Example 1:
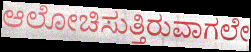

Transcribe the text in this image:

ಆಲೋಚಿಸುತ್ತಿರುವಾಗಲೇ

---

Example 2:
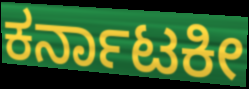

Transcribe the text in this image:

ಕರ್ನಾಟಕೀ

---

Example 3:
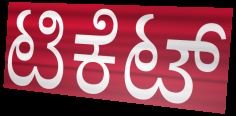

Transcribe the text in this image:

ಟಿಕೆಟ್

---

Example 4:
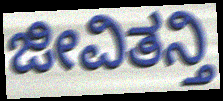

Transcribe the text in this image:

ಜೀವಿತನ್ತಿ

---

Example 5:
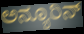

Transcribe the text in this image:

ಅನ್ಯೂರಿನ್